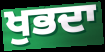
ਖੁਭਦਾ